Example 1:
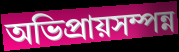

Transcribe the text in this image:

অভিপ্রায়সম্পন্ন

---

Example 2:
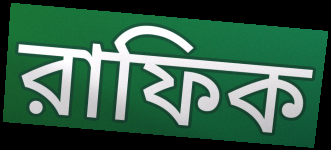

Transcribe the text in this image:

রাফিক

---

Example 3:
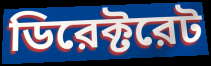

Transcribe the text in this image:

ডিরেক্টরেট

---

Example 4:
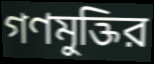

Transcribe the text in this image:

গণমুক্তির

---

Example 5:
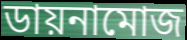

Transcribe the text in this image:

ডায়নামোজ